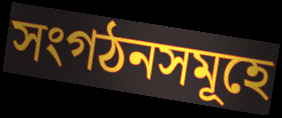
সংগঠনসমূহে